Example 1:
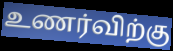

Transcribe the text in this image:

உணர்விற்கு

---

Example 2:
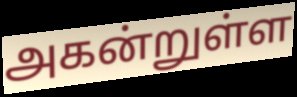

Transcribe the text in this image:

அகன்றுள்ள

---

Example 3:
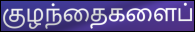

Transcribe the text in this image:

குழந்தைகளைப்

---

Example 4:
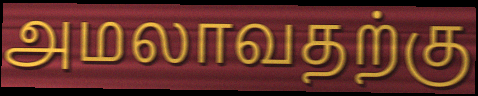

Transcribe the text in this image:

அமலாவதற்கு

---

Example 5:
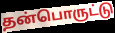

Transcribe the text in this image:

தன்பொருட்டு